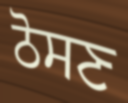
ਠੋਸਣ